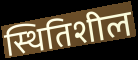
स्थितिशील